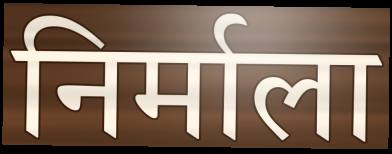
निर्माला